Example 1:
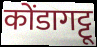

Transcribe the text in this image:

कोंडागट्टू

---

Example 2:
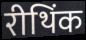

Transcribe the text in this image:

रीथिंक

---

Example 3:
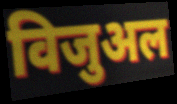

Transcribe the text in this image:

विजुअल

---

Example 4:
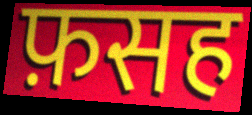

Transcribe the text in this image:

फ़सह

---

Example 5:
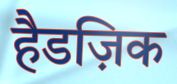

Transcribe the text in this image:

हैडज़िक